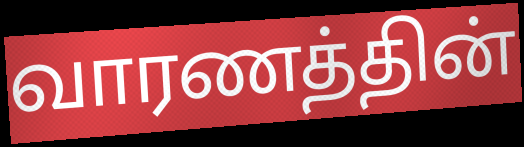
வாரணத்தின்